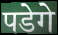
पडेगे